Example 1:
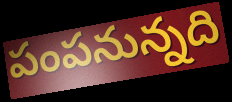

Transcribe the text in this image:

పంపనున్నది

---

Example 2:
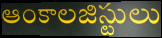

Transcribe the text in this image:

ఆంకాలజిస్టులు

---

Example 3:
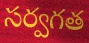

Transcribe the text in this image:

సర్వగత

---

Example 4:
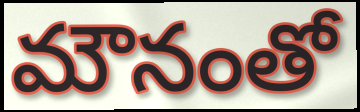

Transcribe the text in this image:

మౌనంతో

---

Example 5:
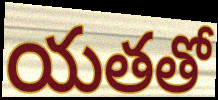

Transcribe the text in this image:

యతతో